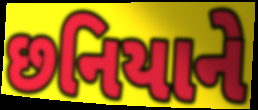
છનિયાને